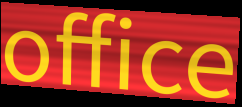
office